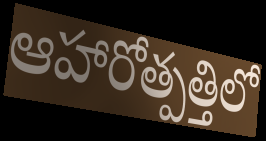
ఆహారోత్పత్తిలో